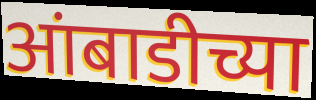
आंबाडीच्या